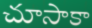
చూసాకా